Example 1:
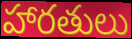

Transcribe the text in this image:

హారతులు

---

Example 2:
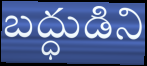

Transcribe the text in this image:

బద్ధుడిని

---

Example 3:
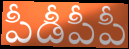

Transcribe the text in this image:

పీడీపీపీ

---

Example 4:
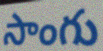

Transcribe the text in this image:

సాంగు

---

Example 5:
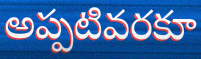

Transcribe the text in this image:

అప్పటివరకూ